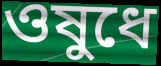
ওষুধে